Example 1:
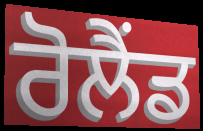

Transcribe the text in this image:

ਰੋਲੈਂਡ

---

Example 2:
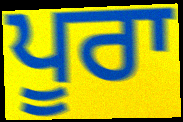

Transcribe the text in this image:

ਪੂਰਾ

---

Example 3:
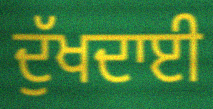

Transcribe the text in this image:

ਦੁੱਖਦਾਈ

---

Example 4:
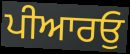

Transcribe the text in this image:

ਪੀਆਰਓੁ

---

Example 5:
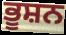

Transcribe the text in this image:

ਭੂਸ਼ਨ